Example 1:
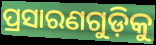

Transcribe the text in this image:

ପ୍ରସାରଣଗୁଡ଼ିକୁ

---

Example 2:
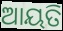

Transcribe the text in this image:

ଆୟତି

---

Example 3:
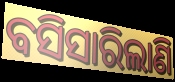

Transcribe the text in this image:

ବସିସାରିଲାଣି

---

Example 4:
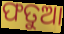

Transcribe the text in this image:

ଫତୁଆ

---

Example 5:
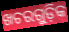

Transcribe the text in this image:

ଖଚରଗୁଡ଼ିକ